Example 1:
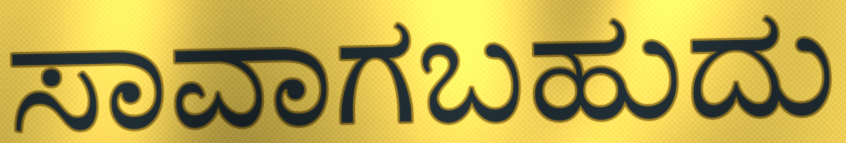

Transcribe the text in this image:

ಸಾವಾಗಬಹುದು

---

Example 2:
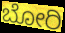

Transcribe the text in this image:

ಬೋರಿ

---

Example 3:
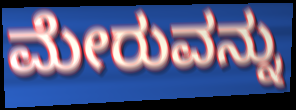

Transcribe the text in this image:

ಮೇರುವನ್ನು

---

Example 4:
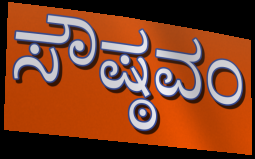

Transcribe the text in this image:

ಸೌಷ್ಠವಂ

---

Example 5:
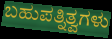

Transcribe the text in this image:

ಬಹುಪತ್ನಿತ್ವಗಳು